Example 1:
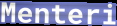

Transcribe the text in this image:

Menteri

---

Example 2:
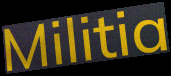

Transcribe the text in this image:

Militia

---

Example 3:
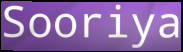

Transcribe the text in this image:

Sooriya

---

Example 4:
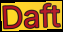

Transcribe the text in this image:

Daft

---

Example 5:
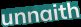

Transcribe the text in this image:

unnaith